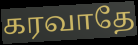
கரவாதே